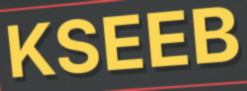
KSEEB